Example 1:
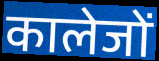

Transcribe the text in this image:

कालेजों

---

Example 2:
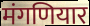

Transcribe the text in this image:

मंगणियार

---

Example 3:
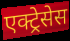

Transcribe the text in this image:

एक्ट्रेसेस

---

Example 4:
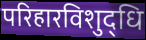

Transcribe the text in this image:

परिहारविशुद्धि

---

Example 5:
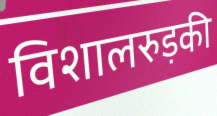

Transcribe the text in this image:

विशालरुड़की